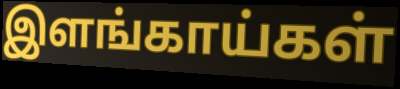
இளங்காய்கள்